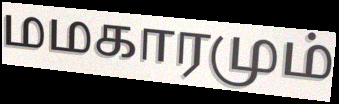
மமகாரமும்